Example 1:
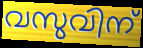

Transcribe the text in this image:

വസുവിന്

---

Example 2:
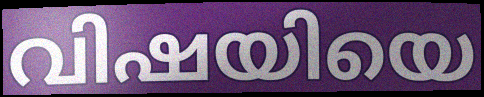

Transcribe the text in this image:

വിഷയിയെ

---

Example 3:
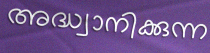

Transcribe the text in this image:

അദ്ധ്വാനിക്കുന്ന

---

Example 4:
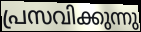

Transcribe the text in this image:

പ്രസവിക്കുന്നു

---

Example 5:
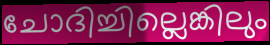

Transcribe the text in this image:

ചോദിച്ചില്ലെങ്കിലും